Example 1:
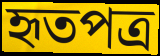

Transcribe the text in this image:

হৃতপত্র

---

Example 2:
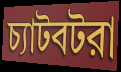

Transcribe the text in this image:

চ্যাটবটরা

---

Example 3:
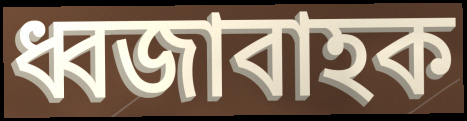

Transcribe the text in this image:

ধ্বজাবাহক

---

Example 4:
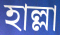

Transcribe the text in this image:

হাল্লা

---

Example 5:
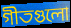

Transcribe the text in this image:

গীতগুলো